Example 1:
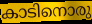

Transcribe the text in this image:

കാടിനൊരു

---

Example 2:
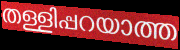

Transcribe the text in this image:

തള്ളിപ്പറയാത്ത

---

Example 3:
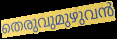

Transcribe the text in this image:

തെരുവുമുഴുവൻ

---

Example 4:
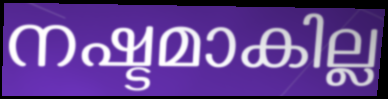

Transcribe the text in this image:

നഷ്ടമാകില്ല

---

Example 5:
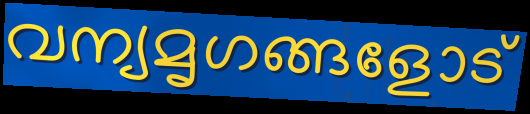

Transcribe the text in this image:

വന്യമൃഗങ്ങളോട്